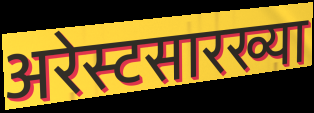
अरेस्टसारख्या